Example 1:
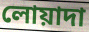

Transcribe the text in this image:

লোয়াদা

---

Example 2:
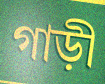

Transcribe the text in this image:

গাড়ী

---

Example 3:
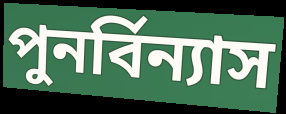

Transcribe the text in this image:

পুনর্বিন্যাস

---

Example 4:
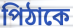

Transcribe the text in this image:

পিঠাকে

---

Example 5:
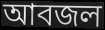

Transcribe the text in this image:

আবজল